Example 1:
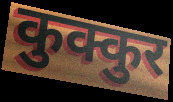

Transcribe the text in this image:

कुक्कुर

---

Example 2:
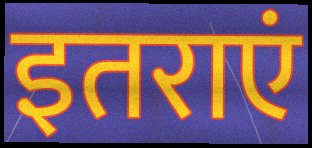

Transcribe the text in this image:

इतराएं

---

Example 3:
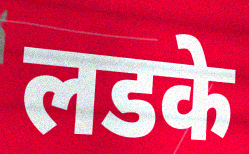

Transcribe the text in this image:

लडके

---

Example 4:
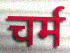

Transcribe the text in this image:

चर्म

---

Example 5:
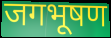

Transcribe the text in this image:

जगभूषण